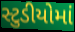
સ્ટુડીયોમાં